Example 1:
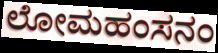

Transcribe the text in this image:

ಲೋಮಹಂಸನಂ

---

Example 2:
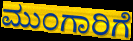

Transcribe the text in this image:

ಮುಂಗಾರಿಗೆ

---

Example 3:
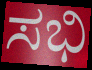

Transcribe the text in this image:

ಸಭಿ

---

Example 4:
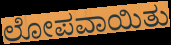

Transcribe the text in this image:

ಲೋಪವಾಯಿತು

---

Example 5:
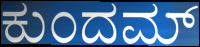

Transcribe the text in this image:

ಕುಂದಮ್